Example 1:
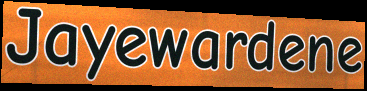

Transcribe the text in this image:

Jayewardene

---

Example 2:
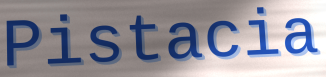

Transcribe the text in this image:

Pistacia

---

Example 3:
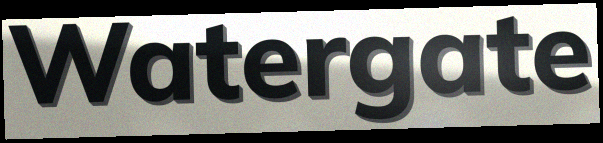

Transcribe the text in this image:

Watergate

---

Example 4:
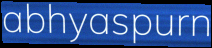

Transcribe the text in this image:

abhyaspurn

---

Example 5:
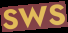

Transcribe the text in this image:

SWS